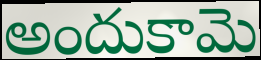
అందుకామె